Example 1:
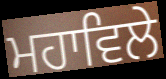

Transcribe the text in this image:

ਮਹਾਵਿਲੇ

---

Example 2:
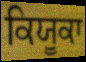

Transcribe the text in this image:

ਕਿਯੂਕਾ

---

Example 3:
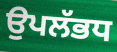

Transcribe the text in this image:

ਉਪਲੱਭਧ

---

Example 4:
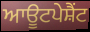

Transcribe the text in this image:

ਆਊਟਪੇਸ਼ੈਂਟ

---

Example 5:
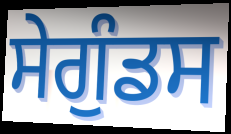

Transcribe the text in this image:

ਸੇਗੁੰਡਸ